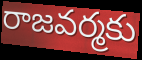
రాజవర్మకు